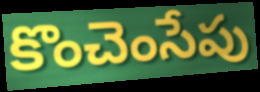
కొంచెంసేపు